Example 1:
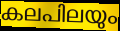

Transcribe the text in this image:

കലപിലയും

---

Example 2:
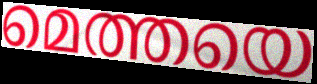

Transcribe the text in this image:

മെത്തയെ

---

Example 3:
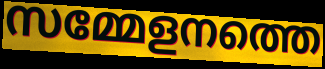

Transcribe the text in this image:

സമ്മേളനത്തെ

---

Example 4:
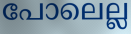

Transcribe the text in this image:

പോലെല്ല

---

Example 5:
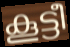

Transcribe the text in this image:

കൂട്ടീ